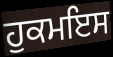
ਹੁਕਮਇਸ